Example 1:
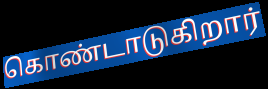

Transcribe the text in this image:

கொண்டாடுகிறார்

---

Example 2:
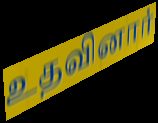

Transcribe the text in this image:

உதவினார்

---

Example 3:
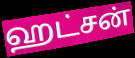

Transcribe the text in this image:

ஹட்சன்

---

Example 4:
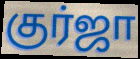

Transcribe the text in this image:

குர்ஜா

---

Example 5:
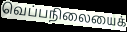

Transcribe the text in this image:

வெப்பநிலையைக்